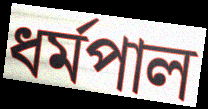
ধর্মপাল